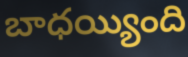
బాధయ్యింది